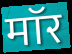
मॉर